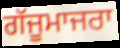
ਗੱਜੂਮਾਜਰਾ